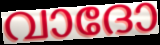
വാദോ